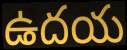
ఉదయ